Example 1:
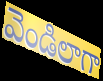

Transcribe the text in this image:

వెండిలాగా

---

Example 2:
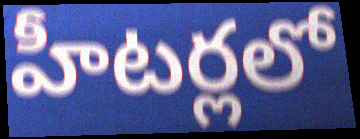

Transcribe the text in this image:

హీటర్లలో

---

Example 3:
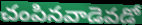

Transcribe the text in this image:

చంపినవాడెవడో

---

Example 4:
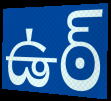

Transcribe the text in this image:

ఉఠ్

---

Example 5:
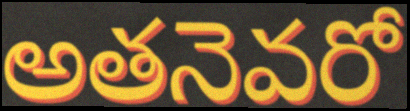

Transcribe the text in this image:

అతనెవరో